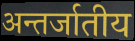
अन्तर्जातीय